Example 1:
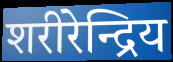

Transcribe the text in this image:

शरीरेन्द्रिय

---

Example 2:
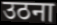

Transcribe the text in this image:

उठना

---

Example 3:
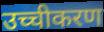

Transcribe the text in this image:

उच्चीकरण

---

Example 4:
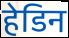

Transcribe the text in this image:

हेडिन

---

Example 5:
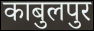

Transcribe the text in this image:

काबुलपुर